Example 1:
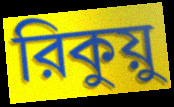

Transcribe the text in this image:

রিকুয়ু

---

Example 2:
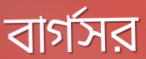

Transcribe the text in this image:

বার্গসর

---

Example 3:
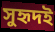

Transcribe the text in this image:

সুহৃদই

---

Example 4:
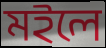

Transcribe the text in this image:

মইলে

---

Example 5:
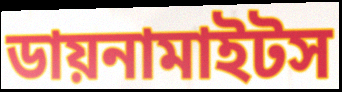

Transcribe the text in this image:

ডায়নামাইটস